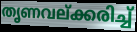
തൃണവല്ക്കരിച്ച്